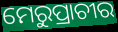
ମେରୁପ୍ରାଚୀର